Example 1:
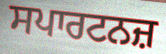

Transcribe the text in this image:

ਸਪਾਰਟਨਜ਼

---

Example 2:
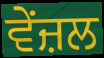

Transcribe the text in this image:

ਵੇਂਜ਼ਲ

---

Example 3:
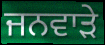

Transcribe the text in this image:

ਜਨਵਾੜੇ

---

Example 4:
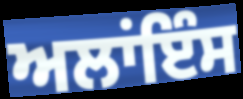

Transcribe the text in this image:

ਅਲਾਂਇੰਸ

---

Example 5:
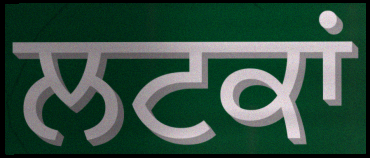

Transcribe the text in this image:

ਲਟਕਾਂ